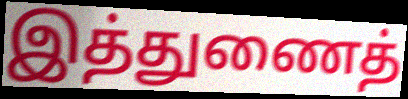
இத்துணைத்